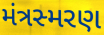
મંત્રસ્મરણ